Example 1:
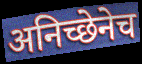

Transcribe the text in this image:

अनिच्छेनेच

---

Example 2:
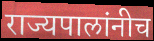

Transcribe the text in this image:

राज्यपालांनीच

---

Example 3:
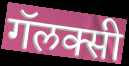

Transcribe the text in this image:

गॅलक्सी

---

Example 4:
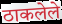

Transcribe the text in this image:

ठाकलेले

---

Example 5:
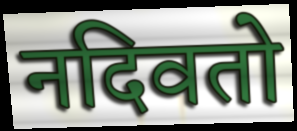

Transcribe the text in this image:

नदिवतो